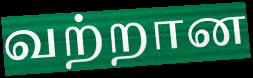
வற்றான